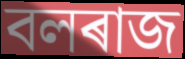
বলৰাজ